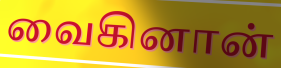
வைகினான்